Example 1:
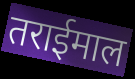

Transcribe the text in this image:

तराईमाल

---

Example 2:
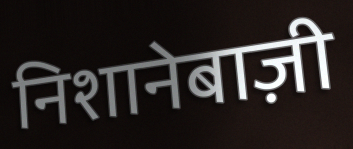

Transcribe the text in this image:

निशानेबाज़ी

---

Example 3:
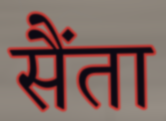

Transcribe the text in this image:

सैंता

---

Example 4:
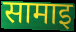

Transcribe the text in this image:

सामाइ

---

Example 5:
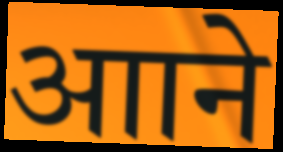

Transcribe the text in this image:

आाने